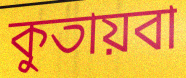
কুতায়বা